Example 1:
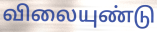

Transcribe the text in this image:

விலையுண்டு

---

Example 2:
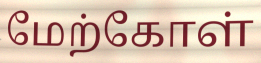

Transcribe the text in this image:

மேற்கோள்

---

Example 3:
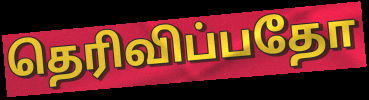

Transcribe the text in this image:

தெரிவிப்பதோ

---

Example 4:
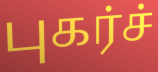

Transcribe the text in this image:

புகர்ச்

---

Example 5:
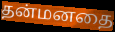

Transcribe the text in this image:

தன்மனதை